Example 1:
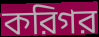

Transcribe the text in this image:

করিগর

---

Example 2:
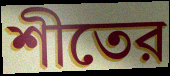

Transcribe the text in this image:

শীতের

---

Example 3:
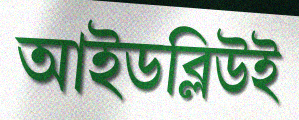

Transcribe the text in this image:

আইডব্লিউই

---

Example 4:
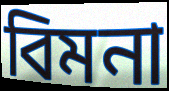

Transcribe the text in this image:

বিমনা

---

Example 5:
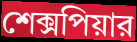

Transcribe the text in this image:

শেক্সপিয়ার